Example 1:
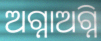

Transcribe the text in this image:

ଅଗ୍ନାଅଗ୍ନି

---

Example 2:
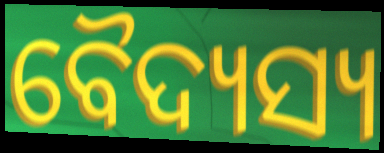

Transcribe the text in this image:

ବୈଦ୍ୟସ୍ୟ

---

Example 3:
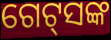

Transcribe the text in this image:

ଗେଟ୍‌ସଙ୍କ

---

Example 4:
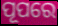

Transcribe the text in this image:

ପୂପରେ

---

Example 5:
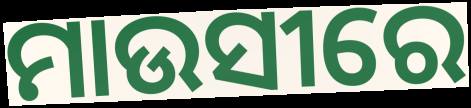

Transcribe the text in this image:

ମାଉସୀରେ